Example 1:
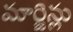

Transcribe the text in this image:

మార్జిన్లు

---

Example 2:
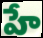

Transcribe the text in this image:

హే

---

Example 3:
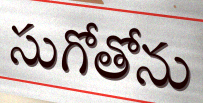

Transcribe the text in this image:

సుగోతోను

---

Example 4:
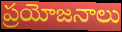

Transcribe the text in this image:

ప్రయోజనాలు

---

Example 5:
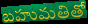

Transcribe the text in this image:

బహుమతితో